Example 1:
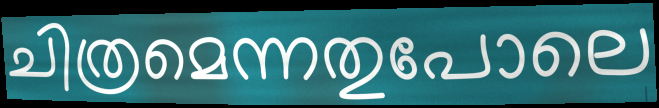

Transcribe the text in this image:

ചിത്രമെന്നതുപോലെ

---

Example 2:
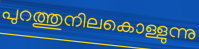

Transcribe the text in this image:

പുറത്തുനിലകൊള്ളുന്നു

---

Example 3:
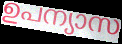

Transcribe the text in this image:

ഉപന്യാസ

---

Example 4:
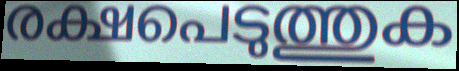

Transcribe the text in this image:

രക്ഷപെടുത്തുക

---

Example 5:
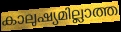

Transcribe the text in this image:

കാലുഷ്യമില്ലാത്ത